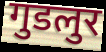
गुडलुर